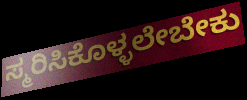
ಸ್ಮರಿಸಿಕೊಳ್ಳಲೇಬೇಕು